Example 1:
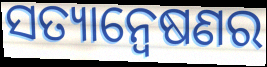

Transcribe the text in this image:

ସତ୍ୟାନ୍ୱେଷଣର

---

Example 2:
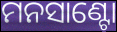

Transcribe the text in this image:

ମନସାଣ୍ଟୋ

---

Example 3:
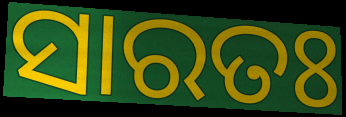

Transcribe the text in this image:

ସାରତଃ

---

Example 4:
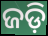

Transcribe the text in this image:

ଜଡ଼ି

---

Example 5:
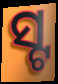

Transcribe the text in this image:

ସ୍ଟ